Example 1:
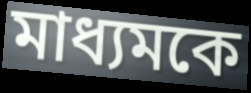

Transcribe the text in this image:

মাধ্যমকে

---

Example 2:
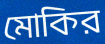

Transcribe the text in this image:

মোকির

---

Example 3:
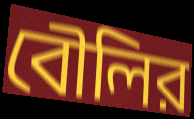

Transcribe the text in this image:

বৌলির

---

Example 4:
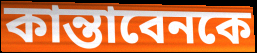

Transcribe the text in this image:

কান্তাবেনকে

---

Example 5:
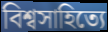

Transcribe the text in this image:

বিশ্বসাহিত্যে